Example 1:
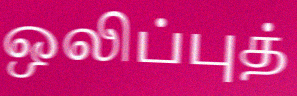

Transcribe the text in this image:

ஒலிப்புத்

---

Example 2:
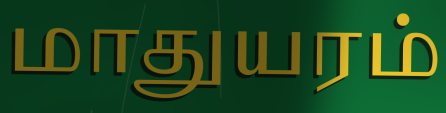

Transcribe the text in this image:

மாதுயரம்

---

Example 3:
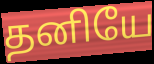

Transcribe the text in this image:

தனியே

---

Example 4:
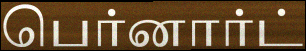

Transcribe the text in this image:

பெர்னார்ட்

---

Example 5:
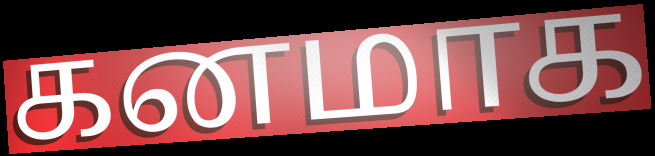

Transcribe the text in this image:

கனமாக